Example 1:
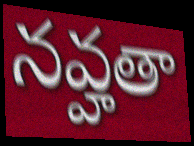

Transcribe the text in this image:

నవ్హతా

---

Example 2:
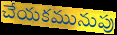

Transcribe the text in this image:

చేయకమునుపు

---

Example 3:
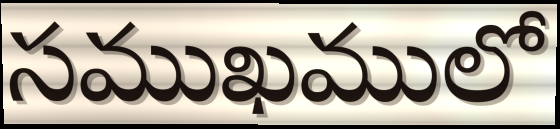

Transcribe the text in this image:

సముఖములో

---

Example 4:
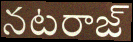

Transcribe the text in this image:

నటరాజ్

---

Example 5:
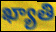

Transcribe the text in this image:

ఖ్యాతి